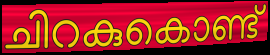
ചിറകുകൊണ്ട്